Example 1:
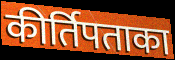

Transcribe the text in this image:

कीर्तिपताका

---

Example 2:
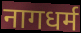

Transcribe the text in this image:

नागधर्म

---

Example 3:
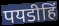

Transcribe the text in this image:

पयडीहिं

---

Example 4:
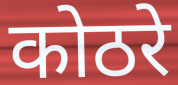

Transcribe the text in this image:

कोठरे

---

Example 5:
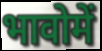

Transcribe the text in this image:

भावोमें